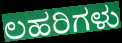
ಲಹರಿಗಳು